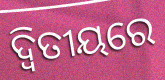
ଦ୍ଵିତୀୟରେ